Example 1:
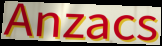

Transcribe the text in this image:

Anzacs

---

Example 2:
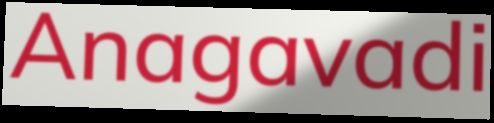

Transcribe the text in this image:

Anagavadi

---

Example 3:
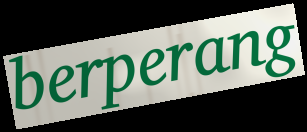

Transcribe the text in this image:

berperang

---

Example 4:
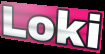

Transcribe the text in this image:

Loki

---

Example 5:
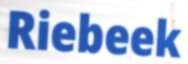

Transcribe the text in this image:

Riebeek